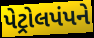
પેટ્રોલપંપને